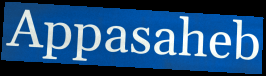
Appasaheb